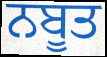
ਨਬੂਤ